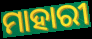
ମାହାରୀ